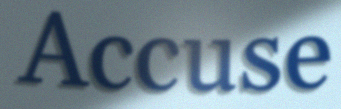
Accuse